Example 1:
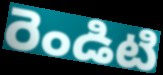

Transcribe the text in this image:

రెండిటి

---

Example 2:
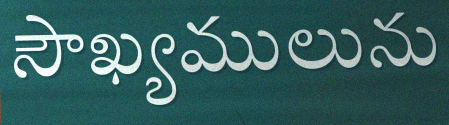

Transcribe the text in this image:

సౌఖ్యములును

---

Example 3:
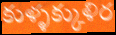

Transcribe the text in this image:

కుళ్ళక్కుళిర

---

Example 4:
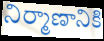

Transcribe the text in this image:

నిర్మాణానికి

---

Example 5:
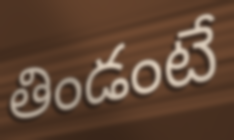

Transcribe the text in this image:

తిండంటే